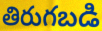
తిరుగబడి